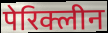
पेरिक्लीन